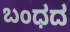
ಬಂಧದ